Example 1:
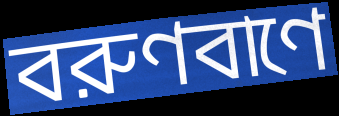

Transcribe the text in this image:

বরুণবাণে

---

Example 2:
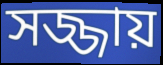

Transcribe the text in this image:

সজ্জায়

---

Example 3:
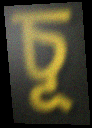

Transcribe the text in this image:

চূ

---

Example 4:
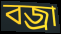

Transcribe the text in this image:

বজ্রা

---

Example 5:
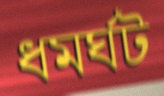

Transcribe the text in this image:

ধমর্ঘট